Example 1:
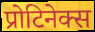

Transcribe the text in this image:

प्रोटिनेक्स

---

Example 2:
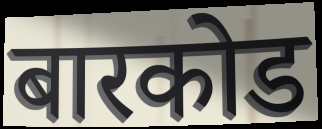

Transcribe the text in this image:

बारकोड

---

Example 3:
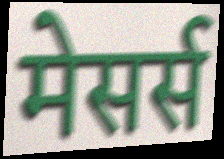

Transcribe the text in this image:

मेसर्स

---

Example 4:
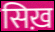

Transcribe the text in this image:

सिख़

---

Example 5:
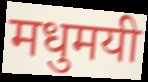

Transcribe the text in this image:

मधुमयी